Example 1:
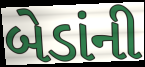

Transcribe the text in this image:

બેડાંની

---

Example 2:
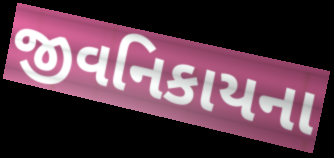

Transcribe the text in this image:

જીવનિકાયના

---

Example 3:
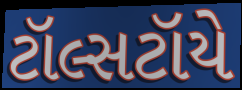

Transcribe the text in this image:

ટૉલ્સટૉયે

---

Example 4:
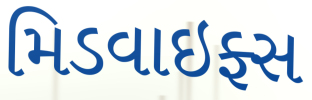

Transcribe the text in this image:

મિડવાઇફ્સ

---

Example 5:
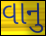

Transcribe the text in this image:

વાનુ